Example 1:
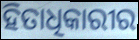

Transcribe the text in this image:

ହିତାଧିକାରୀର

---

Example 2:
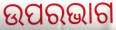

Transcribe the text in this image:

ଉପରଭାଗ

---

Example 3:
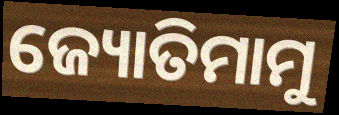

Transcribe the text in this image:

ଜ୍ୟୋତିମାମୁ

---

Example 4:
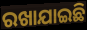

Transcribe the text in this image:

ରଖାଯାଇଛି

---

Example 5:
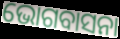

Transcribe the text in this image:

ଭୋଗବାସନା